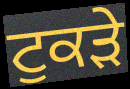
ਟੁਕੜੇ